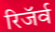
रिजॅर्व